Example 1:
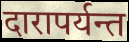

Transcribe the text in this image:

दारापर्यन्त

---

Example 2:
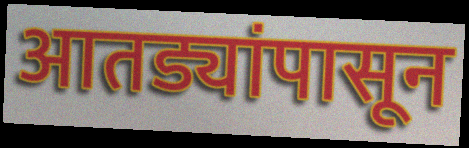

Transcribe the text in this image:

आतड्यांपासून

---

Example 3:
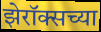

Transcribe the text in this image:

झेरॉक्सच्या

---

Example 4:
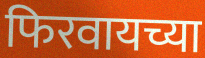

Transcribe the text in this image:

फिरवायच्या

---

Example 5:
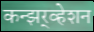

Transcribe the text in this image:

कन्झर्व्हेशन